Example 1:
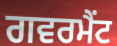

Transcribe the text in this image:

ਗਵਰਮੈਂਟ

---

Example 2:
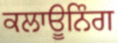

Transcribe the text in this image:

ਕਲਾਊਨਿੰਗ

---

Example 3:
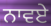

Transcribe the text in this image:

ਨਾਵਏ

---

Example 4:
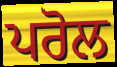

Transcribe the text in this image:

ਪਰੋਲ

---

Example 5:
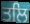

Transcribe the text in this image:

ਤਲਿ